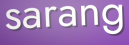
sarang